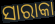
ସାରାକା